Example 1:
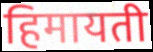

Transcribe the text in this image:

हिमायती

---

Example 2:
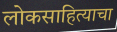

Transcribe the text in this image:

लोकसाहित्याचा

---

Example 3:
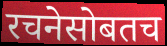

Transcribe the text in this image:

रचनेसोबतच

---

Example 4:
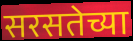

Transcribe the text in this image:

सरसतेच्या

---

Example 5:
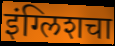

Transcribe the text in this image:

इंग्लिशचा